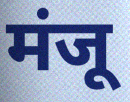
मंजू